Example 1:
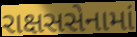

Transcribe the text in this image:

રાક્ષસસેનામાં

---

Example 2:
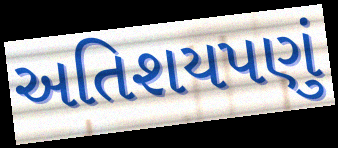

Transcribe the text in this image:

અતિશયપણું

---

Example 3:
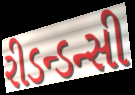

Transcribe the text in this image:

રીડન્ડન્સી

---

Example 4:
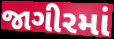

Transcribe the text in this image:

જાગીરમાં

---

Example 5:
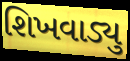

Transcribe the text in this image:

શિખવાડ્યુ